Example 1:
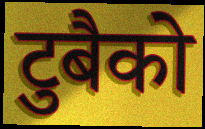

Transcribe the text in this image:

टुबैको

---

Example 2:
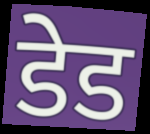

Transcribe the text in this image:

डेड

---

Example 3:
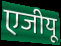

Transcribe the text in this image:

एजीयू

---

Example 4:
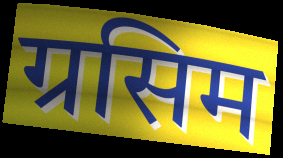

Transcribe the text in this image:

ग्रसिम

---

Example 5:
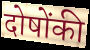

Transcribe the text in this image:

दोषोंकी